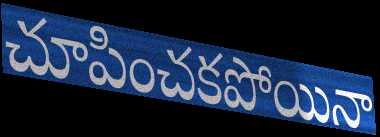
చూపించకపోయినా